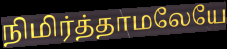
நிமிர்த்தாமலேயே